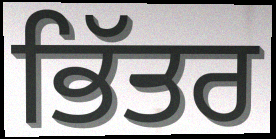
ਭਿੱਤਰ